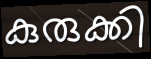
കുരുക്കി